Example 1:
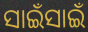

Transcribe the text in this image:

ସାଇଁସାଇଁ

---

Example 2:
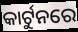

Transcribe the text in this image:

କାର୍ଟୁନରେ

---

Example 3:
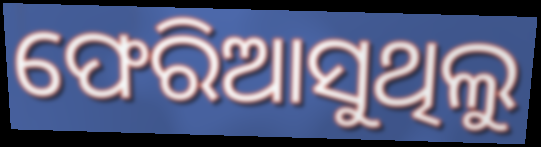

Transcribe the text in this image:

ଫେରିଆସୁଥିଲୁ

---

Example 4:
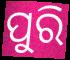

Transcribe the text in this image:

ପୁରି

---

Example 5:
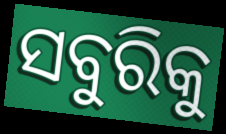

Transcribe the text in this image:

ସବୁରିକୁ